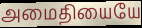
அமைதியையே